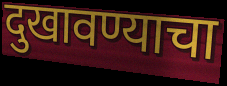
दुखावण्याचा